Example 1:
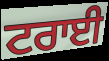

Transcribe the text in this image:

ਟਰਾਈ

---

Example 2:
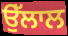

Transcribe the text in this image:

ਉੱਲਾਲ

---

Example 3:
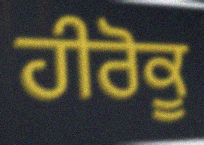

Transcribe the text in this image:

ਹੀਰੋਕੂ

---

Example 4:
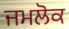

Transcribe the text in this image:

ਜਮਲੋਕ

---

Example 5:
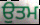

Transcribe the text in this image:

ਉਤਮ